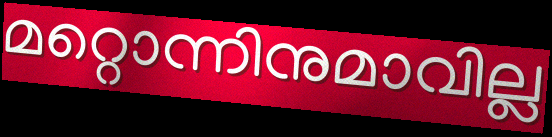
മറ്റൊന്നിനുമാവില്ല